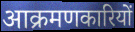
आक्रमणकारियों